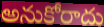
అనుకోరాదు